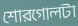
শোরগোলটা